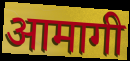
आमागी